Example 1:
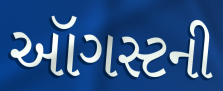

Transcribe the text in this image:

ઑગસ્ટની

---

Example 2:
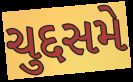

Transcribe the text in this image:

ચુદ્દસમે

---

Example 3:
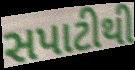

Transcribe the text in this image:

સપાટીથી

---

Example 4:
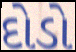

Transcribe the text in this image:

દોડો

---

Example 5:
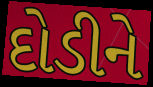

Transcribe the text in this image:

દોડીને